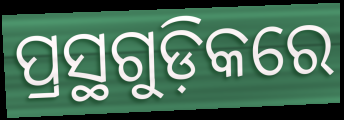
ପ୍ରସ୍ଥଗୁଡ଼ିକରେ